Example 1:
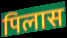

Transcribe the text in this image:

पिलास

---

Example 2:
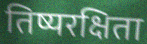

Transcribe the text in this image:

तिष्यरक्षिता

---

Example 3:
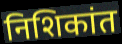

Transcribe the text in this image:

निशिकांत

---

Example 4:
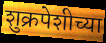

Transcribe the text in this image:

शुक्रपेशीच्या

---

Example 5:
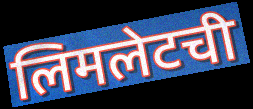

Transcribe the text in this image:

लिमलेटची